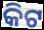
କିଟ